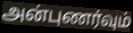
அன்புணர்வும்